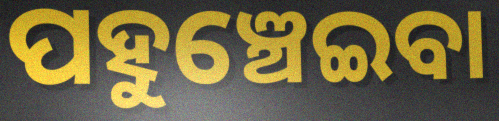
ପହୁଞ୍ଚେଇବା